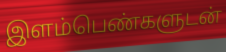
இளம்பெண்களுடன்